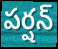
పర్షన్